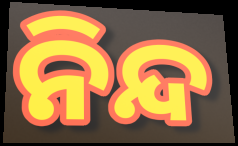
ନିନ୍ଦ